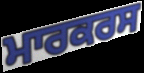
ਮਾਰਕਰਸ